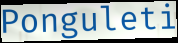
Ponguleti